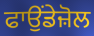
ਫਾਉਂਡੇਜ਼ੋਲ